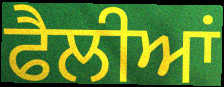
ਫੈਲੀਆਂ